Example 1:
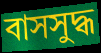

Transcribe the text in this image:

বাসসুদ্ধ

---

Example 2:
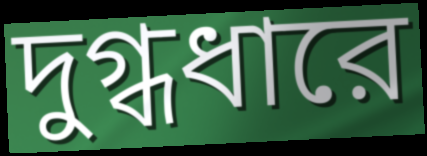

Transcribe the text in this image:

দুগ্ধধারে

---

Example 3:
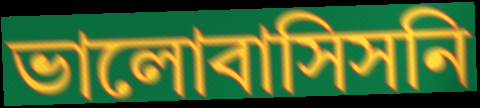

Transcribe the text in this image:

ভালোবাসিসনি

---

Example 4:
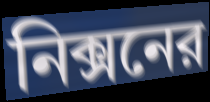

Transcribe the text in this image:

নিক্সনের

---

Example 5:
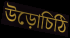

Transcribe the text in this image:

উড়োচিঠি